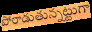
పోరాడుతున్నట్టుగా